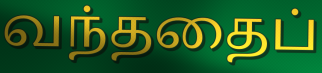
வந்ததைப்